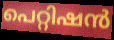
പെറ്റിഷൻ